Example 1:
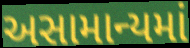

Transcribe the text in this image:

અસામાન્યમાં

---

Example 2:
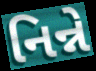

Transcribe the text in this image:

નિન્ને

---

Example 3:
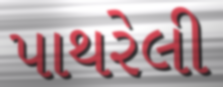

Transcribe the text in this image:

પાથરેલી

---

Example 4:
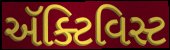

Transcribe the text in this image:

ઍક્ટિવિસ્ટ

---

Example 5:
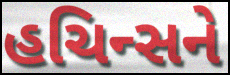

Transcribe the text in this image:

હચિન્સને